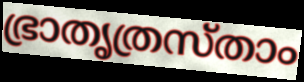
ഭ്രാതൃത്രസ്താം